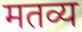
मतव्य